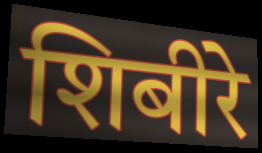
शिबीरे